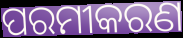
ପରମୀକରଣ